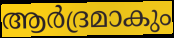
ആർദ്രമാകും